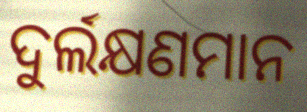
ଦୁର୍ଲକ୍ଷଣମାନ